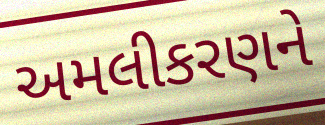
અમલીકરણને